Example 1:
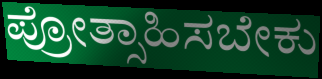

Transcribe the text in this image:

ಪ್ರೋತ್ಸಾಹಿಸಬೇಕು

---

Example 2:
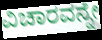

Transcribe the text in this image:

ವಿಚಾರವನ್ನೇ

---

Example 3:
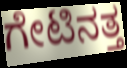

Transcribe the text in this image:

ಗೇಟಿನತ್ತ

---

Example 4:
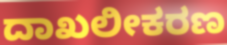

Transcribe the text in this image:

ದಾಖಲೀಕರಣ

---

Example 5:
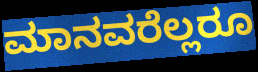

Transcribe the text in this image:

ಮಾನವರೆಲ್ಲರೂ